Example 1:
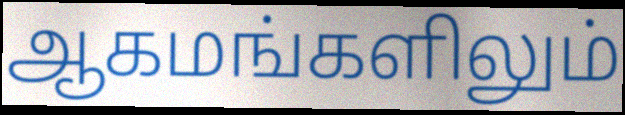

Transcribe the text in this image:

ஆகமங்களிலும்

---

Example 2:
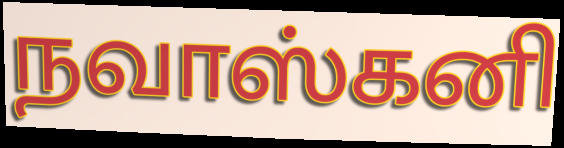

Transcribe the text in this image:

நவாஸ்கனி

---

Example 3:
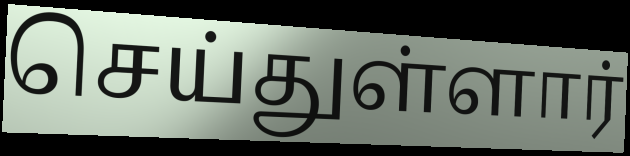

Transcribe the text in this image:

செய்துள்ளார்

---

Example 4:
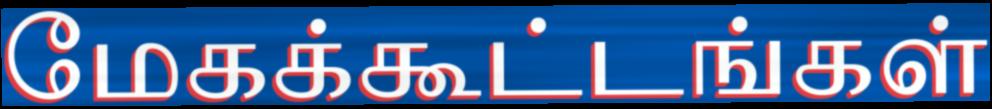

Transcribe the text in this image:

மேகக்கூட்டங்கள்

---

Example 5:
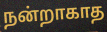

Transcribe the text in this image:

நன்றாகாத